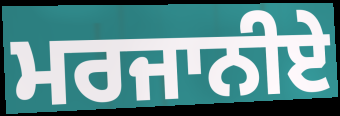
ਮਰਜਾਨੀਏ